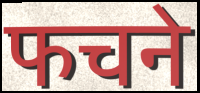
फचने